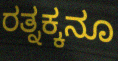
ರತ್ನಕ್ಕನೂ